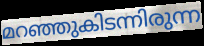
മറഞ്ഞുകിടന്നിരുന്ന